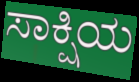
ಸಾಕ್ಷಿಯ